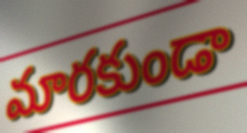
మారకుండా